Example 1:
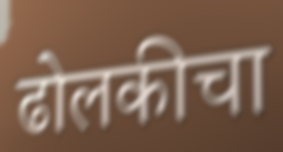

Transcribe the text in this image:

ढोलकीचा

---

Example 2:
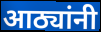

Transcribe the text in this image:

आठ्यांनी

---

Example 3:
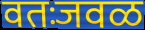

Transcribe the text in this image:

वतःजवळ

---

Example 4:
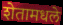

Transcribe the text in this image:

शेतामधले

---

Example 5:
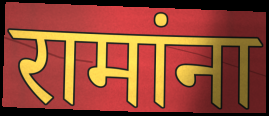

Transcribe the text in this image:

रामांना